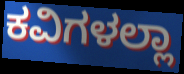
ಕವಿಗಳಲ್ಲಾ